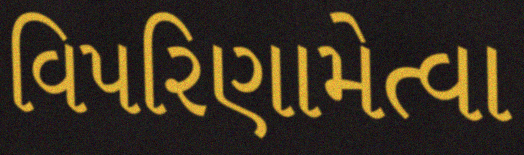
વિપરિણામેત્વા